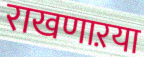
राखणाऱया